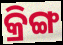
କ୍ରିଙ୍ଗ